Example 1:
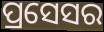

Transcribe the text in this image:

ପ୍ରସେସର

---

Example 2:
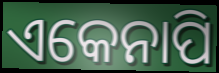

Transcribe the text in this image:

ଏକେନାପି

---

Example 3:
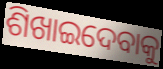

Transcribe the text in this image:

ଶିଖାଇଦେବାକୁ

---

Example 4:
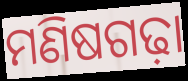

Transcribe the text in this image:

ମଣିଷଗଢ଼ା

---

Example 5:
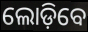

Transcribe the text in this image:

ଲୋଡ଼ିବେ